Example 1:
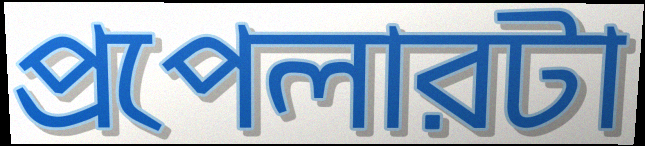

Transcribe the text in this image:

প্রপেলারটা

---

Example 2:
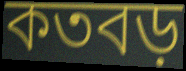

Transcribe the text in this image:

কতবড়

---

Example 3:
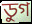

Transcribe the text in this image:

ডুগ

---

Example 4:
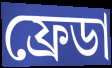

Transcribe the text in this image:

ফ্রেডা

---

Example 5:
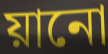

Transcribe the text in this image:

য়ানো